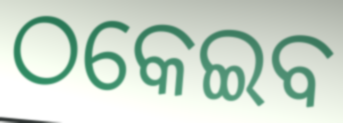
ଠକେଇବ